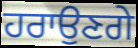
ਹਰਾਉਣਗੇ